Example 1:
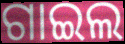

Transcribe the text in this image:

ଗାଇଲ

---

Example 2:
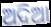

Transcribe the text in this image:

ଅଦିଆ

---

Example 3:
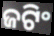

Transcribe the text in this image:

ଜଟିଂ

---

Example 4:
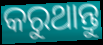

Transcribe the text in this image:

କରୁଥାନ୍ତୁ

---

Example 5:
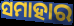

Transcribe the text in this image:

ସମାହାର